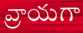
వ్రాయగా